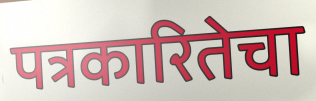
पत्रकारितेचा